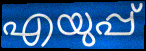
എയുപ്പ്